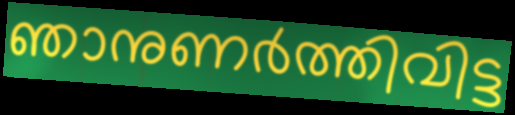
ഞാനുണർത്തിവിട്ട